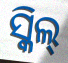
ସ୍କିଲ୍